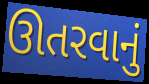
ઊતરવાનું